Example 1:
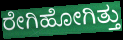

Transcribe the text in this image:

ರೇಗಿಹೋಗಿತ್ತು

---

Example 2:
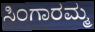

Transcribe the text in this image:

ಸಿಂಗಾರಮ್ಮ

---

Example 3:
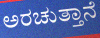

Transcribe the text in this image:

ಅರಚುತ್ತಾನೆ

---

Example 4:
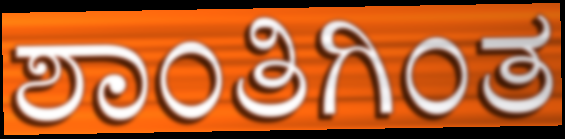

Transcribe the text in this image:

ಶಾಂತಿಗಿಂತ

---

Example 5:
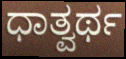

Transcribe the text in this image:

ಧಾತ್ವರ್ಥ